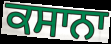
ਕਸਾਨਾ